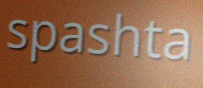
spashta